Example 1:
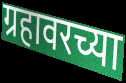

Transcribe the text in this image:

ग्रहावरच्या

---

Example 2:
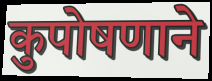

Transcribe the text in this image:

कुपोषणाने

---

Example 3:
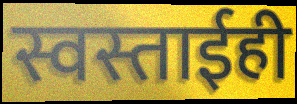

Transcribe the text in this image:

स्वस्ताईही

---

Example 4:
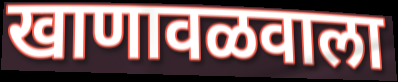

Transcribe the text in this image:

खाणावळवाला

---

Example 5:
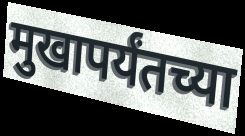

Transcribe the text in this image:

मुखापर्यंतच्या